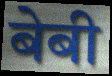
बेबी